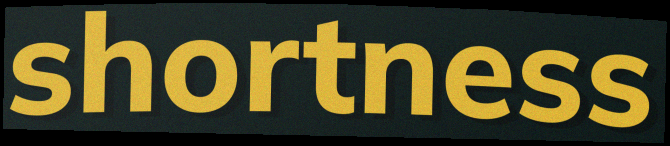
shortness